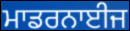
ਮਾਡਰਨਾਈਜ